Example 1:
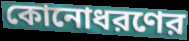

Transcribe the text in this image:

কোনোধরণের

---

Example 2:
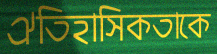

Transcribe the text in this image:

ঐতিহাসিকতাকে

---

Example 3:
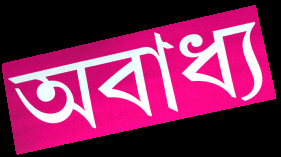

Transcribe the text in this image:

অবাধ্য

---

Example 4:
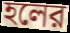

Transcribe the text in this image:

হলের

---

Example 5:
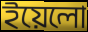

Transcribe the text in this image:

ইয়েলো